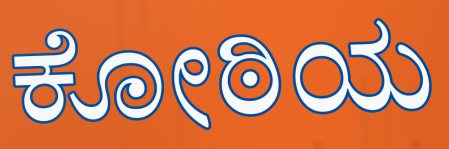
ಕೋಠಿಯ